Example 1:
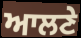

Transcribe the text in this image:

ਆਲਣੇ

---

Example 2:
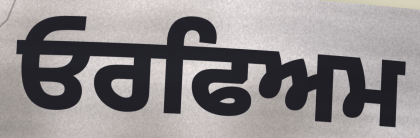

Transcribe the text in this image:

ਓਰਫਿਅਮ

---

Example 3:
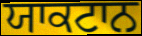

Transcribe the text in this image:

ਯਾਕਟਾਨ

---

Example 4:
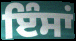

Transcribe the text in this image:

ਇੰਸਾਂ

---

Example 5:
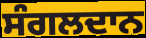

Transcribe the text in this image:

ਸੰਗਲਦਾਨ